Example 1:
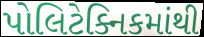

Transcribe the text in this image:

પોલિટેક્નિકમાંથી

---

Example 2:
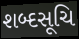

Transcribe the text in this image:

શબ્દસૂચિ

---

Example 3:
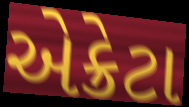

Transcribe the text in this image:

એક્રેટા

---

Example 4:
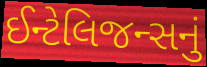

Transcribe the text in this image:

ઈન્ટેલિજન્સનું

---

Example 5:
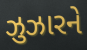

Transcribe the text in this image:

ઝુઝારને